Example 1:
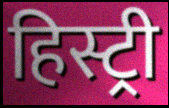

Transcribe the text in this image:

हिस्ट्री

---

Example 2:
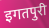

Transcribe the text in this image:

इगतपुरी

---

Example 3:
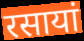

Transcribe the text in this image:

रसायां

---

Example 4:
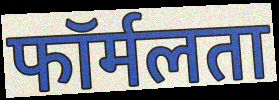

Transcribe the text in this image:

फॉर्मलता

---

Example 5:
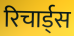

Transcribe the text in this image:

रिचार्ड्स